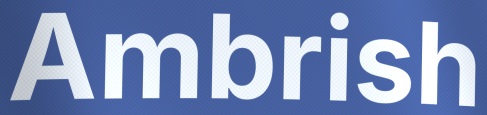
Ambrish